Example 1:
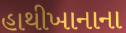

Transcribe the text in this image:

હાથીખાનાના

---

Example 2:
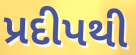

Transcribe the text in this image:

પ્રદીપથી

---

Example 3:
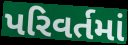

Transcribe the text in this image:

પરિવર્તમાં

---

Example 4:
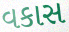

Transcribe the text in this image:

વકાસ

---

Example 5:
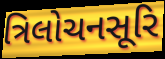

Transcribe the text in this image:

ત્રિલોચનસૂરિ